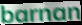
barnan